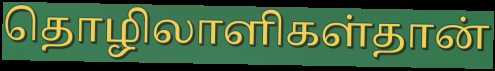
தொழிலாளிகள்தான்